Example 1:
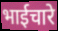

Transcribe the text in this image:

भाईचारे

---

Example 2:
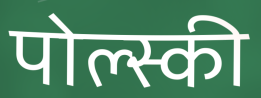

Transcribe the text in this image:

पोल्स्की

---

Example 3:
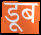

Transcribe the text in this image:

डूब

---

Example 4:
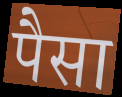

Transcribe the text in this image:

पैसा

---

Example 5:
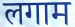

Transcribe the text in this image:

लगाम